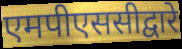
एमपीएससीद्वारे